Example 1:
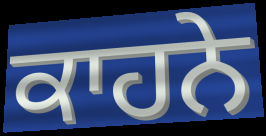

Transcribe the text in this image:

ਕਾਹਨੇ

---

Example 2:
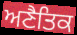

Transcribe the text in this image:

ਅਣੈਤਿਕ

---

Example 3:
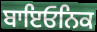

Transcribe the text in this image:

ਬਾਇਓਨਿਕ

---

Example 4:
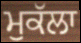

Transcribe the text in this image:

ਮੁਕੱਲਾ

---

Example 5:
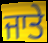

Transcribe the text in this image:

ਜਾਤੇ